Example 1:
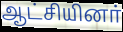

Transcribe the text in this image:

ஆட்சியினர்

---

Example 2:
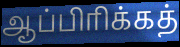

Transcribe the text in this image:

ஆப்பிரிக்கத்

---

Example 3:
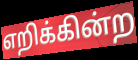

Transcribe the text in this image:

எறிக்கின்ற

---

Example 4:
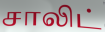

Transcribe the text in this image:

சாலிட்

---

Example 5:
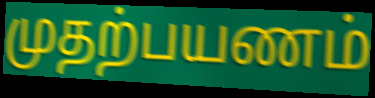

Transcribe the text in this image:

முதற்பயணம்